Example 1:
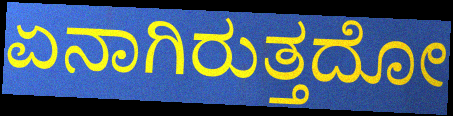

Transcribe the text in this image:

ಏನಾಗಿರುತ್ತದೋ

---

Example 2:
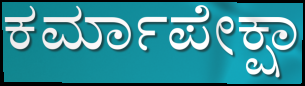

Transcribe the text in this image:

ಕರ್ಮಾಪೇಕ್ಷಾ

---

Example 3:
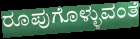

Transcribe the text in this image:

ರೂಪುಗೊಳ್ಳುವಂತೆ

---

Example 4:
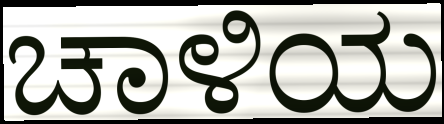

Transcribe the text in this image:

ಚಾಳಿಯ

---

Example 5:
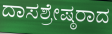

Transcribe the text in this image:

ದಾಸಶ್ರೇಷ್ಠರಾದ